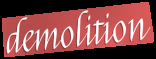
demolition